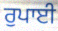
ਰੁਪਾਈ